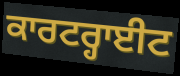
ਕਾਰਟਰ੍ਹਾਈਟ